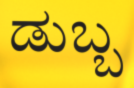
ಡುಬ್ಬ